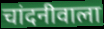
चांदनीवाला